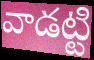
వాడట్టి